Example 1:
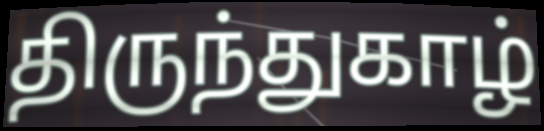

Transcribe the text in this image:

திருந்துகாழ்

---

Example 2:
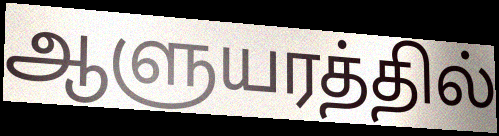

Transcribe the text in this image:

ஆளுயரத்தில்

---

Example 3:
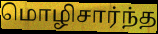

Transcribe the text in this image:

மொழிசார்ந்த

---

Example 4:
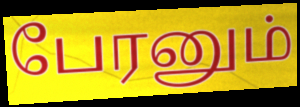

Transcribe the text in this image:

பேரனும்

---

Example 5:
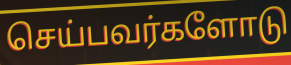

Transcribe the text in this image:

செய்பவர்களோடு